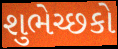
શુભેચ્છકો